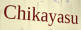
Chikayasu